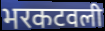
भरकटवली